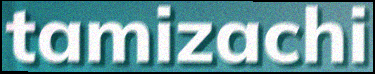
tamizachi